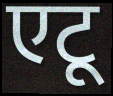
एटू